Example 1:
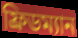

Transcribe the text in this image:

ফ্রিডম্যান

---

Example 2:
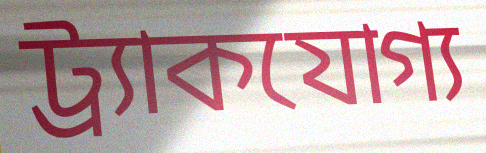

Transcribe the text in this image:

ট্র্যাকযোগ্য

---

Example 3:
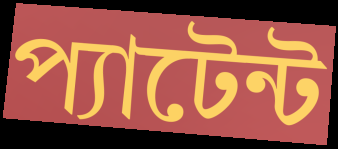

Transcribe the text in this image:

প্যাটেন্ট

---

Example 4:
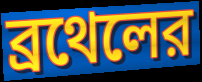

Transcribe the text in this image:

ব্রথেলের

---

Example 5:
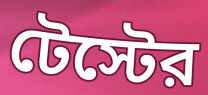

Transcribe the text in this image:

টেস্টের